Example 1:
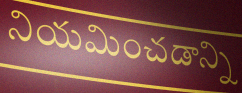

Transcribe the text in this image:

నియమించడాన్ని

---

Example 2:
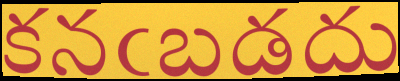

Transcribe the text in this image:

కనఁబడదు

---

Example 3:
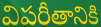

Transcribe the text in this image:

విపరీతానికి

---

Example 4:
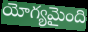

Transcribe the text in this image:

యోగ్యమైంది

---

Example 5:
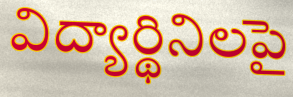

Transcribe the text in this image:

విద్యార్థినిలపై